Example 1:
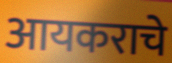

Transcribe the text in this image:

आयकराचे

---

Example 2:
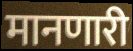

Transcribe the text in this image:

मानणारी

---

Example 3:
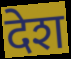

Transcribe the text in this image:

देश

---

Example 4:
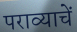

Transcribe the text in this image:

पराव्याचें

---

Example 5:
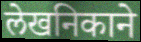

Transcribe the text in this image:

लेखनिकाने